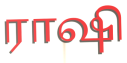
ராஷி